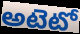
అటెటో